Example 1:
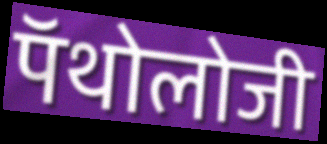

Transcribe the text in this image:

पॅथोलोजी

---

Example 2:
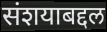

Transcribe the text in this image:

संशयाबद्दल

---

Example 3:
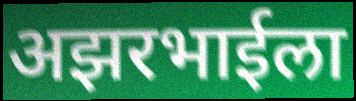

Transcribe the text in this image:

अझरभाईला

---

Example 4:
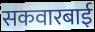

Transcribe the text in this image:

सकवारबाई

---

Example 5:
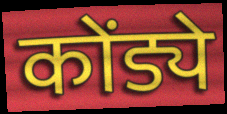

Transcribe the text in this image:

कोंड्ये